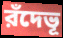
রঁদেভূ